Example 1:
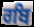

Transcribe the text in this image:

ਰਬਿ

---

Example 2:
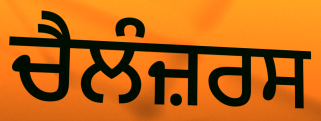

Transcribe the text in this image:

ਚੈਲੰਜ਼ਰਸ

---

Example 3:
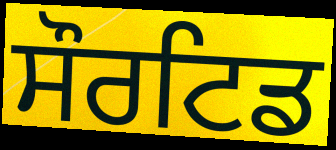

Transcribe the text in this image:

ਸੌਰਟਿਡ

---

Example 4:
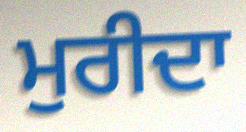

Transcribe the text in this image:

ਮੁਰੀਦਾ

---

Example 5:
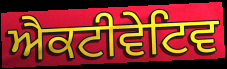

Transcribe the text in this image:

ਐਕਟੀਵੇਟਿਵ